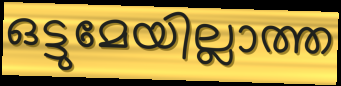
ഒട്ടുമേയില്ലാത്ത